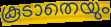
കൂടാതെയും